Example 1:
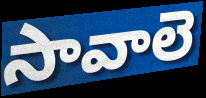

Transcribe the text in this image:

సావాలె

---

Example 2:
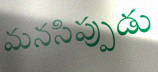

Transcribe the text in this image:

మనసిప్పుడు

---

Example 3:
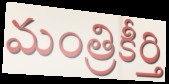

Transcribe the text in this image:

మంత్రికీర్తి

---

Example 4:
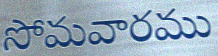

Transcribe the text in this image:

సోమవారము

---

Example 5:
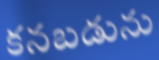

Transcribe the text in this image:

కనబడును